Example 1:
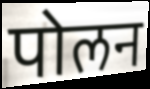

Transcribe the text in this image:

पोलन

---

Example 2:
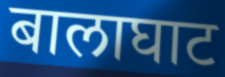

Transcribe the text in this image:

बालाघाट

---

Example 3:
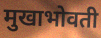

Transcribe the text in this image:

मुखाभोवती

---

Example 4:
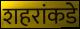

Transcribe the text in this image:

शहरांकडे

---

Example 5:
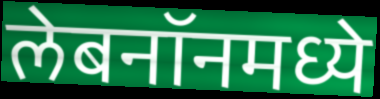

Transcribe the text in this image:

लेबनॉनमध्ये